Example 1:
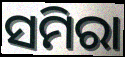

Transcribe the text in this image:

ସମିରା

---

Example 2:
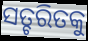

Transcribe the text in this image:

ସତ୍ଚରିତକୁ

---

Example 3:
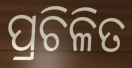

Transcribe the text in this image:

ପ୍ରଚିଳିତ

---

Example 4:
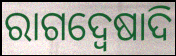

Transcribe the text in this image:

ରାଗଦ୍ୱେଷାଦି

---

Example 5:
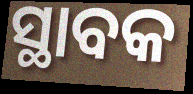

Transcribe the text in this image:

ସ୍ଥାବକ